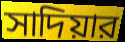
সাদিয়ার